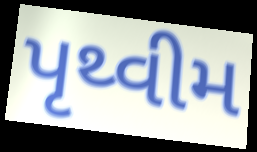
પૃથ્વીમ